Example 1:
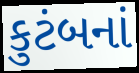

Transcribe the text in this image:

કુટંબનાં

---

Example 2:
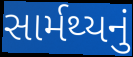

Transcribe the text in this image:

સાર્મથ્યનું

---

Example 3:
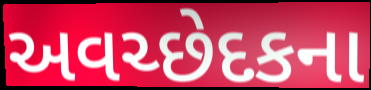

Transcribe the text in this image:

અવચ્છેદકના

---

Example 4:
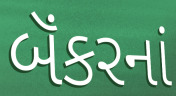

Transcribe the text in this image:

બૅંકરનાં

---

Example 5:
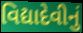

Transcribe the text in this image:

વિદ્યાદેવીનું